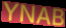
YNAB